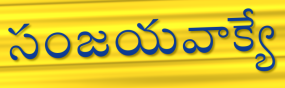
సంజయవాక్యే